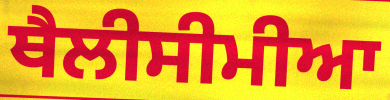
ਥੈਲੀਸੀਮੀਆ